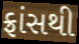
ફ્રાંસથી